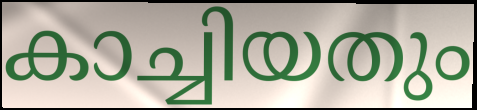
കാച്ചിയതും